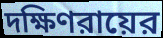
দক্ষিণরায়ের